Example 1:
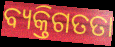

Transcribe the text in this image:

ବ୍ୟକ୍ତିଗତତା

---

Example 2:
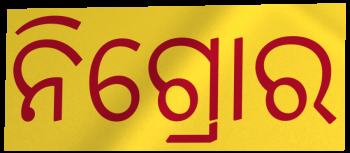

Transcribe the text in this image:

ନିଗ୍ରୋର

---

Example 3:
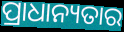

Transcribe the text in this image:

ପ୍ରାଧାନ୍ୟତାର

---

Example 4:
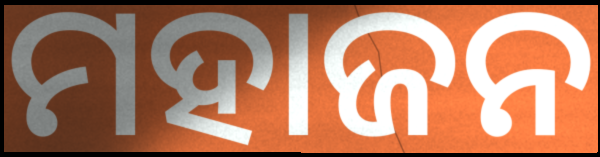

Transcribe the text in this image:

ମହାଜନ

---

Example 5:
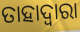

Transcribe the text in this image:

ତାହାଦ୍ଵାରା